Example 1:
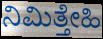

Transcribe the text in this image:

ನಿಮಿತ್ತೇಹಿ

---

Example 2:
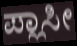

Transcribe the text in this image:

ಪ್ಲಾಸೀ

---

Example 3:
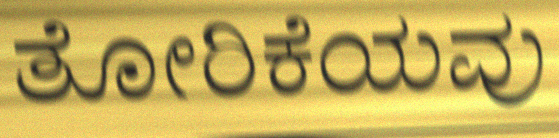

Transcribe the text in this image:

ತೋರಿಕೆಯವು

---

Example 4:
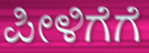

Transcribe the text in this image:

ಪೀಳಿಗೆಗೆ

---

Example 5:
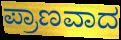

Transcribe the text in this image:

ಪ್ರಾಣವಾದ